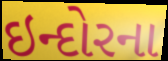
ઇન્દોરના